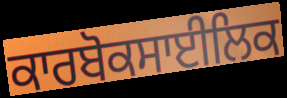
ਕਾਰਬੋਕਸਾਈਲਿਕ